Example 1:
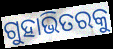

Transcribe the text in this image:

ଗୁହାଭିତରକୁ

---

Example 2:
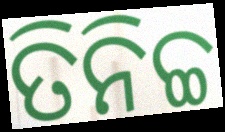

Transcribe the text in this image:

ତିନିଚ୍ଚ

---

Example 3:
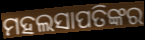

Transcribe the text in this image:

ମହଲସାପତିଙ୍କର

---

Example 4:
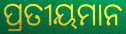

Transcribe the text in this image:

ପ୍ରତୀୟମାନ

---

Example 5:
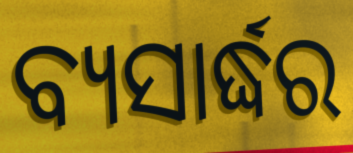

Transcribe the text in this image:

ବ୍ୟସାର୍ଦ୍ଧର